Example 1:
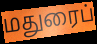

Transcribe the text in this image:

மதுரைப்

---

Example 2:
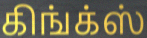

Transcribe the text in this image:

கிங்க்ஸ்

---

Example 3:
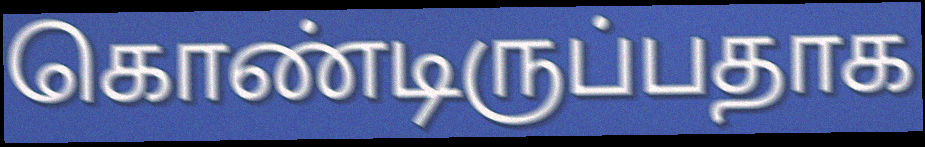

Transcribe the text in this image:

கொண்டிருப்பதாக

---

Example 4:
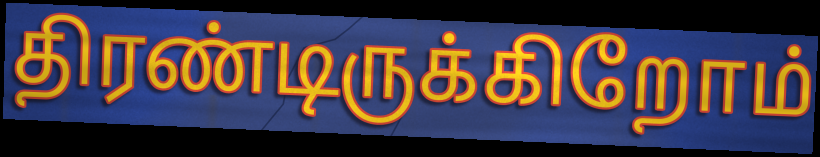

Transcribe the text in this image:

திரண்டிருக்கிறோம்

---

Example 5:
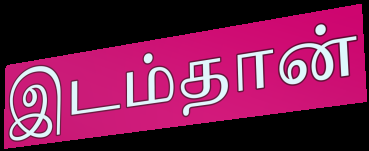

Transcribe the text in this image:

இடம்தான்